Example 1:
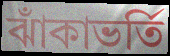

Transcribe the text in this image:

ঝাঁকাভর্তি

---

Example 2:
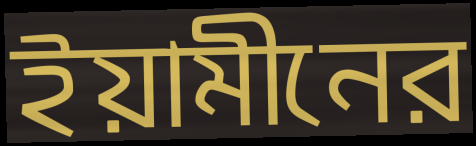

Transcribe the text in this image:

ইয়ামীনের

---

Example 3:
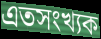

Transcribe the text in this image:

এতসংখ্যক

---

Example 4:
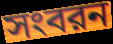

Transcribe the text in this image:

সংবরন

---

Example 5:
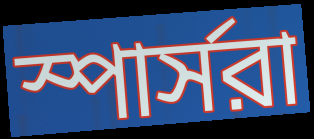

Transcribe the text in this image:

স্পার্সরা